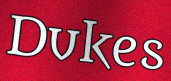
Dukes